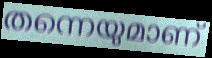
തന്നെയുമാണ്